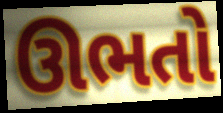
ઊભતો